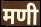
मणी